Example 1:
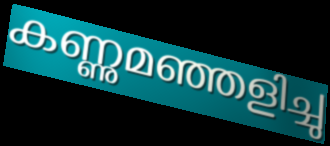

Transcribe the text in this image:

കണ്ണുമഞ്ഞളിച്ചു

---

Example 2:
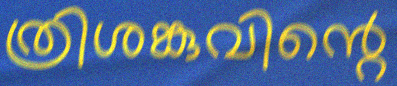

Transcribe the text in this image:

ത്രിശങ്കുവിന്റെ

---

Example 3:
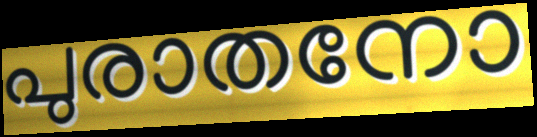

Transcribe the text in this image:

പുരാതനോ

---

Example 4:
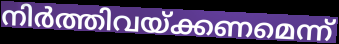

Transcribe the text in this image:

നിർത്തിവയ്ക്കണമെന്ന്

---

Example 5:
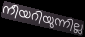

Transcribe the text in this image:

നീയറിയുന്നില്ല